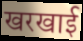
खरखाई